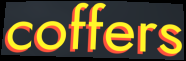
coffers